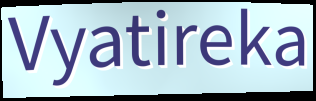
Vyatireka